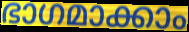
ഭാഗമാക്കാം